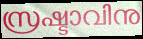
സ്രഷ്ടാവിനു